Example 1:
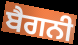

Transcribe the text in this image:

ਬੈਗਨੀ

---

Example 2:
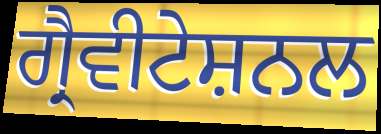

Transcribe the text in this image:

ਗ੍ਰੈਵੀਟੇਸ਼ਨਲ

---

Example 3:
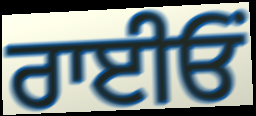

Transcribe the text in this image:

ਰਾਈਓਂ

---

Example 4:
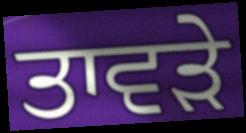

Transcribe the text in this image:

ਤਾਵੜੇ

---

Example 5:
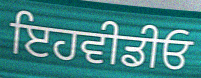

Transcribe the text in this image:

ਇਹਵੀਡੀਓ